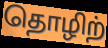
தொழிற்